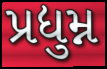
પ્રદ્યુમ્ન